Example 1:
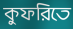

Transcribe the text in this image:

কুফরিতে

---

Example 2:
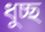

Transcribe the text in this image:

ধুচ্ছ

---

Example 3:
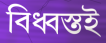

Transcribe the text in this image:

বিধ্বস্তই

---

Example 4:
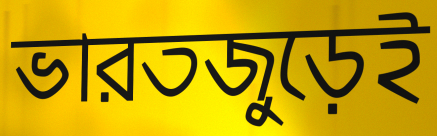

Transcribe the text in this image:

ভারতজুড়েই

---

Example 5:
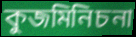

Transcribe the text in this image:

কুজমিনিচনা